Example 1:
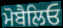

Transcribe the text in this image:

ਮੋਬੈਲਿਓ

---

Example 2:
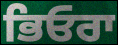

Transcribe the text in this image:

ਭਿਓਰਾ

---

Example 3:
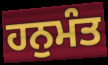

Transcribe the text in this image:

ਹਨੁਮੰਤ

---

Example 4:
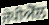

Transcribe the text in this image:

ਜੇਪੀਐੱਲ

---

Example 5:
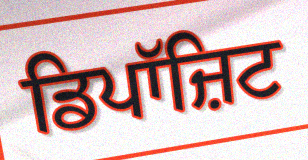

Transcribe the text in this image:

ਡਿਪਾੱਜ਼ਿਟ